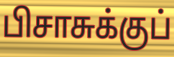
பிசாசுக்குப்